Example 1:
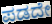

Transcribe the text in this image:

ಪಡದೇ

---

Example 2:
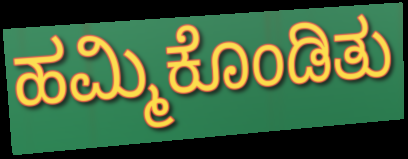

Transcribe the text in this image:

ಹಮ್ಮಿಕೊಂಡಿತು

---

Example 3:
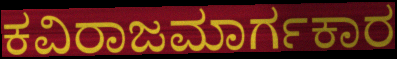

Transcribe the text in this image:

ಕವಿರಾಜಮಾರ್ಗಕಾರ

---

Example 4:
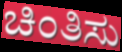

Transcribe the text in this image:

ಚಿಂತಿಸು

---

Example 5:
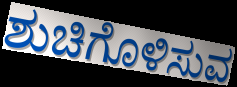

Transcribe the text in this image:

ಶುಚಿಗೊಳಿಸುವ